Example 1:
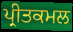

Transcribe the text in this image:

ਪ੍ਰੀਤਕਮਲ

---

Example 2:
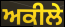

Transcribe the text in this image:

ਅਕੀਲੇ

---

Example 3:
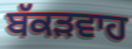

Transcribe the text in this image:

ਬੱਕੜਵਾਹ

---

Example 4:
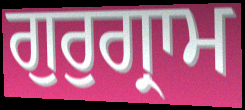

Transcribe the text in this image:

ਗੁਰੁਗ੍ਰਾਮ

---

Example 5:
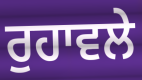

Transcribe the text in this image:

ਰੁਹਾਵਲੇ